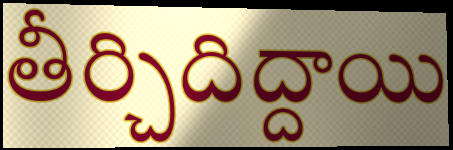
తీర్చిదిద్దాయి